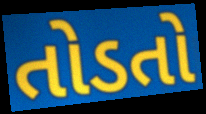
તોડતો